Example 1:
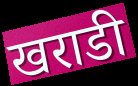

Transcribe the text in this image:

खराडी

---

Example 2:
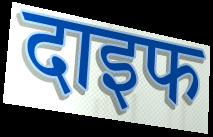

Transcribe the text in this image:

दाइफ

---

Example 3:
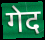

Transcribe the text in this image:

गेद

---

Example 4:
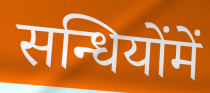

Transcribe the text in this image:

सन्धियोंमें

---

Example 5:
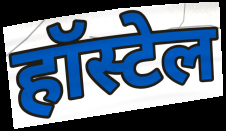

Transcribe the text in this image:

हॉस्टेल